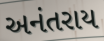
અનંતરાય